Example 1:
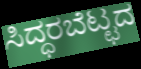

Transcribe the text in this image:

ಸಿದ್ಧರಬೆಟ್ಟದ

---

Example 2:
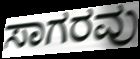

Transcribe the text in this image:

ಸಾಗರವು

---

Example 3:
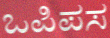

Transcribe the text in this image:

ಒಪಿಪಸ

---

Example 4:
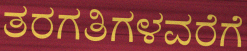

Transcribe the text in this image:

ತರಗತಿಗಳವರೆಗೆ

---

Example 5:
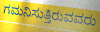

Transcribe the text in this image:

ಗಮನಿಸುತ್ತಿರುವವರು